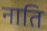
नाति